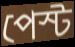
পেস্ট